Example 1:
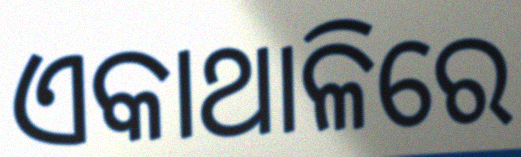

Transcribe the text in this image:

ଏକାଥାଳିରେ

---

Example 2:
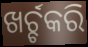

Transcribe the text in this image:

ଖର୍ଚ୍ଚକରି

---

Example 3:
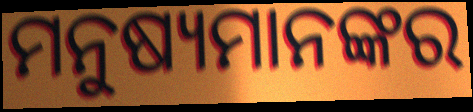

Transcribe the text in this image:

ମନୁଷ୍ଯମାନଙ୍କର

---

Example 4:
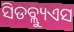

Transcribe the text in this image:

ସିଡବ୍ଲ୍ୟୁଏସ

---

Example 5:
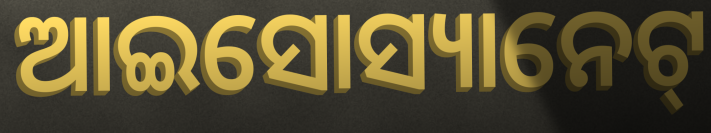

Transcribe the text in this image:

ଆଇସୋସ୍ୟାନେଟ୍